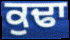
ਕੁਢਾ